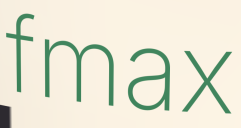
fmax